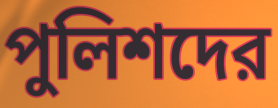
পুলিশদের